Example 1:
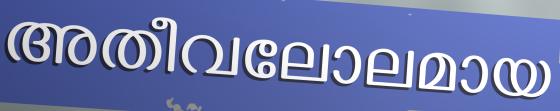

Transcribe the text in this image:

അതീവലോലമായ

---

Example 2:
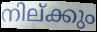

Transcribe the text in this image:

നില്ക്കും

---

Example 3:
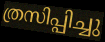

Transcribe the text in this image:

ത്രസിപ്പിച്ചു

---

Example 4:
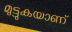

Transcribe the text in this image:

മുട്ടുകയാണ്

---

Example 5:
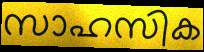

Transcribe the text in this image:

സാഹസിക